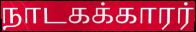
நாடகக்காரர்